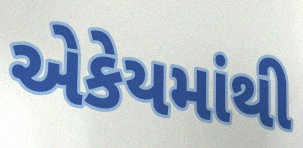
એકેયમાંથી